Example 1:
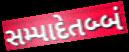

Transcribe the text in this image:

સમ્પાદેતબ્બં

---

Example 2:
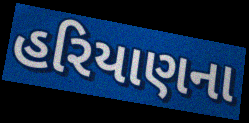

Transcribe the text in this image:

હરિયાણના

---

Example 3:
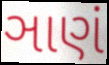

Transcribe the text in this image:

ઞાણં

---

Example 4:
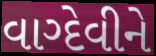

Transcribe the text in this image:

વાગ્દેવીને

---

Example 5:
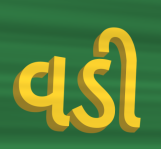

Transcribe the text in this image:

વડી